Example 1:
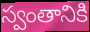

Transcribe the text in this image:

స్వంతానికి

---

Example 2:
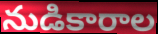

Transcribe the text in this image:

నుడికారాల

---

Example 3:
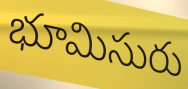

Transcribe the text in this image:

భూమిసురు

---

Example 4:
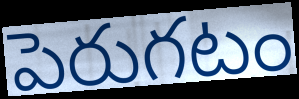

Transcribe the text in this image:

పెరుగటం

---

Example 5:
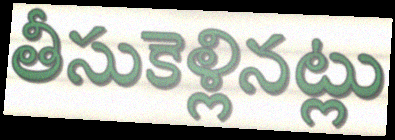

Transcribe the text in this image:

తీసుకెళ్లినట్లు